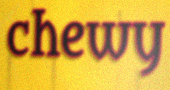
chewy